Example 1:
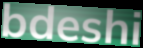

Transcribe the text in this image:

bdeshi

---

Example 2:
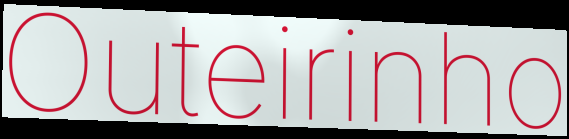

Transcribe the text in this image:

Outeirinho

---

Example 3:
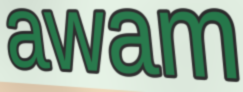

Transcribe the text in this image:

awam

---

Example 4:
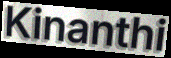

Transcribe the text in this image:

Kinanthi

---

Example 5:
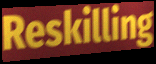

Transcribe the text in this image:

Reskilling